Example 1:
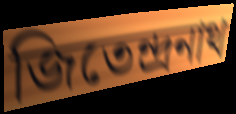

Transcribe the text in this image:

জিতেন্দ্রনাথ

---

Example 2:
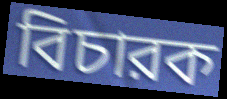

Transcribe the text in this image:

বিচারক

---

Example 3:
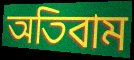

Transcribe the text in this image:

অতিবাম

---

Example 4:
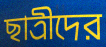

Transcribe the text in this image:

ছাত্রীদের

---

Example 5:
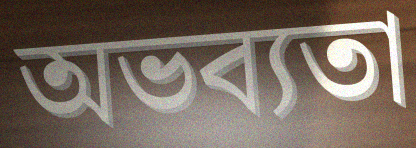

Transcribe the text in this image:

অভব্যতা